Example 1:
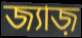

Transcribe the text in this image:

জ্যাজ়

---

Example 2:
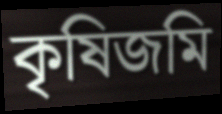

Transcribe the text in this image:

কৃষিজমি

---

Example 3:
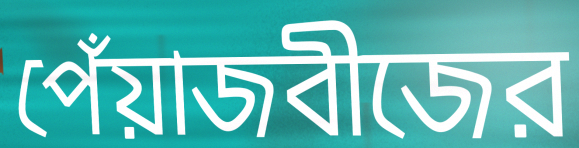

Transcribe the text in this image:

পেঁয়াজবীজের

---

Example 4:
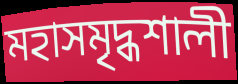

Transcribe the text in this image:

মহাসমৃদ্ধশালী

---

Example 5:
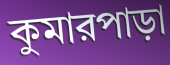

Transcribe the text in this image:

কুমারপাড়া